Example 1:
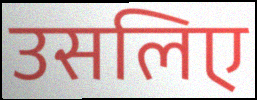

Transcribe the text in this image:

उसलिए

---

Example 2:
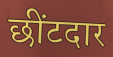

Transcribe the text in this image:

छींटदार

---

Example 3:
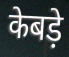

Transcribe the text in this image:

केबड़े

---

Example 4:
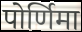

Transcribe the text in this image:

पोर्णिमा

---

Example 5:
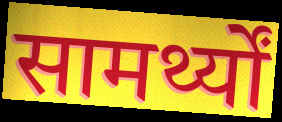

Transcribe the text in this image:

सामर्थ्यों